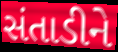
સંતાડીને